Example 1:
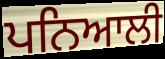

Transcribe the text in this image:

ਪਨਿਆਲੀ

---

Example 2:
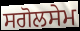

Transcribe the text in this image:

ਸਗੋਲਸੇਮ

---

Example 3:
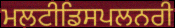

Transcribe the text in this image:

ਮਲਟੀਡਿਸਪਲਨਰੀ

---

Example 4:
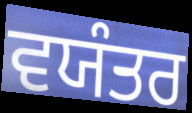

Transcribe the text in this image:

ਵਯੰਤਰ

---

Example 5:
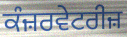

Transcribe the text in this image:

ਕੰਜ਼ਰਵੇਟਰੀਜ਼